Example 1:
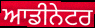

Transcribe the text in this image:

ਆਡੀਨੇਟਰ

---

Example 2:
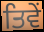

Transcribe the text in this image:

ਤਿਵੇਂ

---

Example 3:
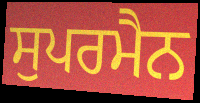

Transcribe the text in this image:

ਸੁਪਰਮੈਨ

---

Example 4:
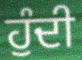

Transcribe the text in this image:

ਹੁੰਦੀ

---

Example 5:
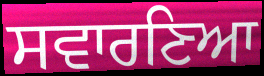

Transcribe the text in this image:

ਸਵਾਰਣਿਆ